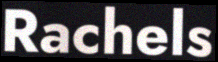
Rachels